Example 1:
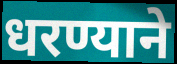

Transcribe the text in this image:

धरण्याने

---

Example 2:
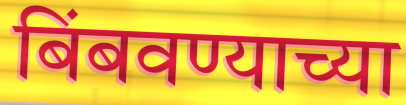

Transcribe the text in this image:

बिंबवण्याच्या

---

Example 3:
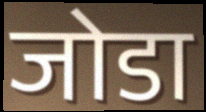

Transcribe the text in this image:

जोडा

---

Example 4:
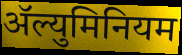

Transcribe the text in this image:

ॲल्युमिनियम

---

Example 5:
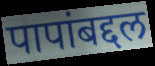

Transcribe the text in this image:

पापांबद्दल